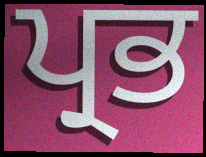
ਪ੍ਰਭ